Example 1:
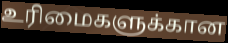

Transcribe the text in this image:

உரிமைகளுக்கான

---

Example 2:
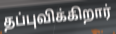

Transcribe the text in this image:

தப்புவிக்கிறார்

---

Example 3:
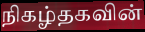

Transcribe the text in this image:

நிகழ்தகவின்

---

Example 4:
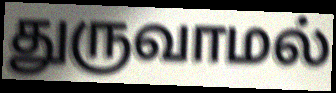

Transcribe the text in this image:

துருவாமல்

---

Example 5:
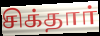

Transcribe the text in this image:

சிக்தார்